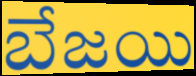
బేజయి